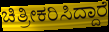
ಚಿತ್ರೀಕರಿಸಿದ್ದಾರೆ